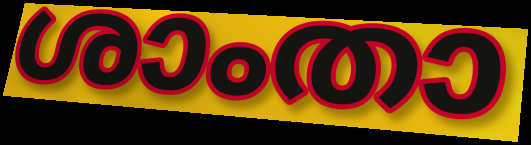
ശാംതാ